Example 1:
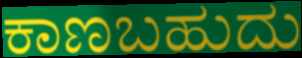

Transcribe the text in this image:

ಕಾಣಬಹುದು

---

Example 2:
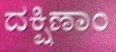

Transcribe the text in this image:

ದಕ್ಷಿಣಾಂ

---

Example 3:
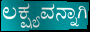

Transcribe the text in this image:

ಲಕ್ಷ್ಯವನ್ನಾಗಿ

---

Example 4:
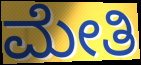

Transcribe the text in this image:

ಮೇತಿ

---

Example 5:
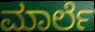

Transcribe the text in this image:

ಮಾರ್ಲೆ